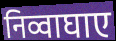
निव्वाघाए